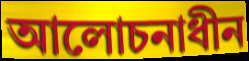
আলোচনাধীন